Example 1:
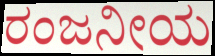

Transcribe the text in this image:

ರಂಜನೀಯ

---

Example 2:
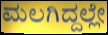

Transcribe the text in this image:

ಮಲಗಿದ್ದಲ್ಲೇ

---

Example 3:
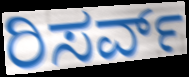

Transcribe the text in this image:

ರಿಸರ್ವ್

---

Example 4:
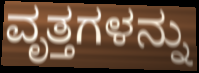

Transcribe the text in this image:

ವೃತ್ತಗಳನ್ನು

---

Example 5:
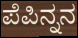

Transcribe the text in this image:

ಪೆಪಿನ್ನನ